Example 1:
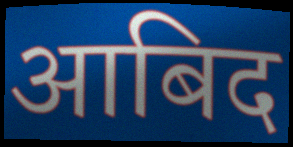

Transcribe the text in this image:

आबिद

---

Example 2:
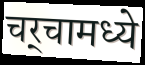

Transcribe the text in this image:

चर्चामध्ये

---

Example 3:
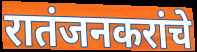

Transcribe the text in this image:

रातंजनकरांचे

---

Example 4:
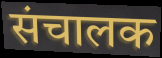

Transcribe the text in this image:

संचालक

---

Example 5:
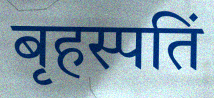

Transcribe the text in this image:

बृहस्पतिं